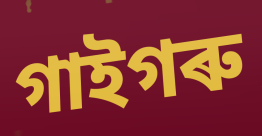
গাইগৰু